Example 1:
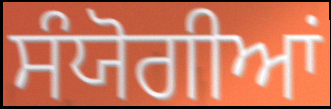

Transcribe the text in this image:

ਸੰਯੋਗੀਆਂ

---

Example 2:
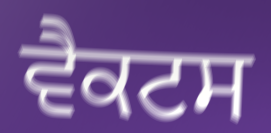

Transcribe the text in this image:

ਵੈਕਟਸ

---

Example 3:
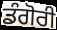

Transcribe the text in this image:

ਡੰਗੋਰੀ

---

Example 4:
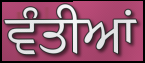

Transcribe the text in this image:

ਵੰਤੀਆਂ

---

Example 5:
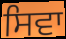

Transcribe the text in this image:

ਸਿਵਾ